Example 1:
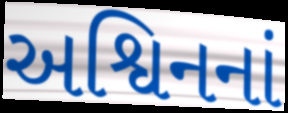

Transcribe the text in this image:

અશ્વિનનાં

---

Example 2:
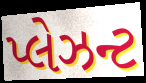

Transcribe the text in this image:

પ્લેઝન્ટ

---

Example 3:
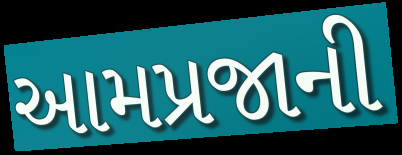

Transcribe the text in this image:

આમપ્રજાની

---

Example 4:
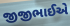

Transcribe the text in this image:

જીજીભાઈએ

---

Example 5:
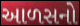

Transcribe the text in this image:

આળસનો